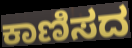
ಕಾಣಿಸದ